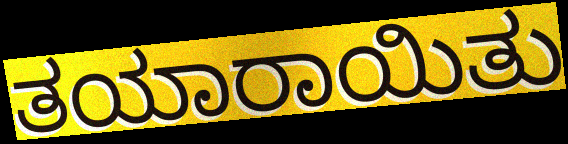
ತಯಾರಾಯಿತು